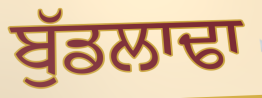
ਬੁੱਡਲਾਢਾ